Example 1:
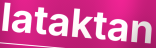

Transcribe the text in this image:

lataktan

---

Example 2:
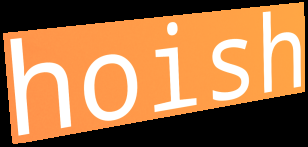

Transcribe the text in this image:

hoish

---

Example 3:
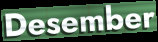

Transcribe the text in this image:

Desember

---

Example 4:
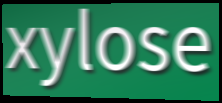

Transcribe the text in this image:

xylose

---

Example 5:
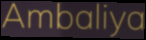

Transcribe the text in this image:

Ambaliya